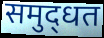
समुद्धत